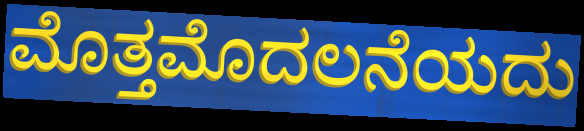
ಮೊತ್ತಮೊದಲನೆಯದು